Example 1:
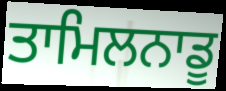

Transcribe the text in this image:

ਤਾਮਿਲਨਾਡੂ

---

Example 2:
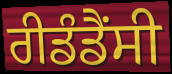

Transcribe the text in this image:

ਰੀਡੰਡੈਂਸੀ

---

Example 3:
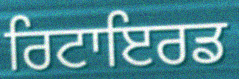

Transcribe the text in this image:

ਰਿਟਾਇਰਡ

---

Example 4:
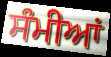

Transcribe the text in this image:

ਸੰਮੀਆਂ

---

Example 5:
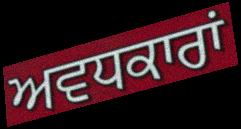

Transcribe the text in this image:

ਅਵਧਕਾਰਾਂ